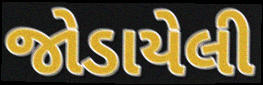
જોડાયેલી